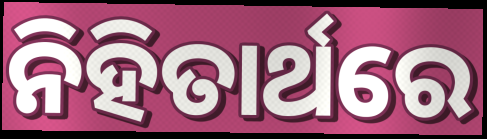
ନିହିତାର୍ଥରେ